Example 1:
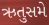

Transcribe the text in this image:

ઋતુસમે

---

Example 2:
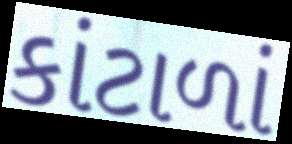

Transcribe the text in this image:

કાંટાળાં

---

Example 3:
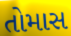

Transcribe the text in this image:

તોમાસ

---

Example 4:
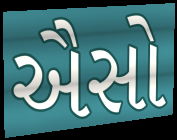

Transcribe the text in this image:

ઐસો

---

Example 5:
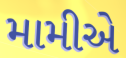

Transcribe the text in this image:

મામીએ